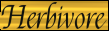
Herbivore